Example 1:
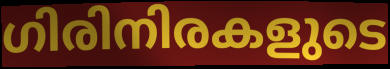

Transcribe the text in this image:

ഗിരിനിരകളുടെ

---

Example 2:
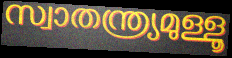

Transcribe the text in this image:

സ്വാതന്ത്ര്യമുള്ളൂ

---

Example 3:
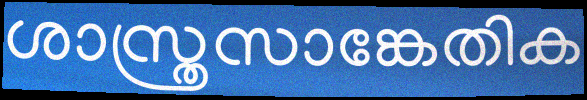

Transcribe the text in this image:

ശാസ്ത്രസാങ്കേതിക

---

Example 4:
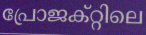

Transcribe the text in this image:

പ്രോജക്റ്റിലെ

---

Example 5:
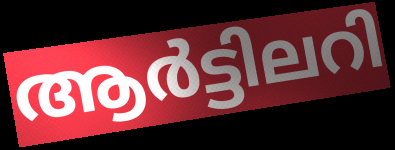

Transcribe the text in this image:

ആർട്ടിലറി